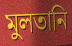
মুলতানি